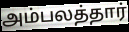
அம்பலத்தார்